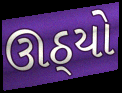
ઊઠ્યો